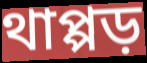
থাপ্পড়